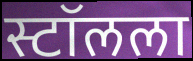
स्टॉलला